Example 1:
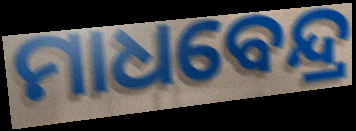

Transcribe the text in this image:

ମାଧବେନ୍ଦ୍ର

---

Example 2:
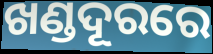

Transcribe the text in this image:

ଖଣ୍ଡଦୂରରେ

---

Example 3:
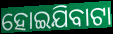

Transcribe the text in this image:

ହୋଇଯିବାଟା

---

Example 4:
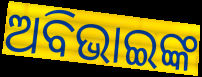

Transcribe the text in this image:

ଅବିଭାଇଙ୍କ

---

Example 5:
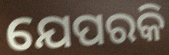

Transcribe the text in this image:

ଯେପରକି